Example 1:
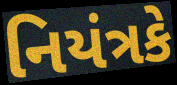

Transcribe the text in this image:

નિયંત્રકે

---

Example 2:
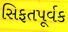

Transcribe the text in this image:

સિફતપૂર્વક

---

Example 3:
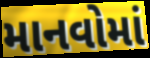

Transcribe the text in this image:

માનવોમાં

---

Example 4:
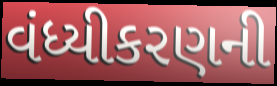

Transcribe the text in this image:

વંધ્યીકરણની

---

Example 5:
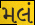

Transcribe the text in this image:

મલં